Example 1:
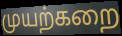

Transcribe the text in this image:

முயற்கறை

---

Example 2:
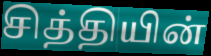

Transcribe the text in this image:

சித்தியின்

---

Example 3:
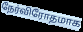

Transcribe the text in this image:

நேர்விரோதமாக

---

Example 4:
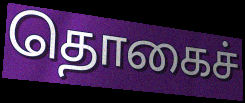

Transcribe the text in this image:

தொகைச்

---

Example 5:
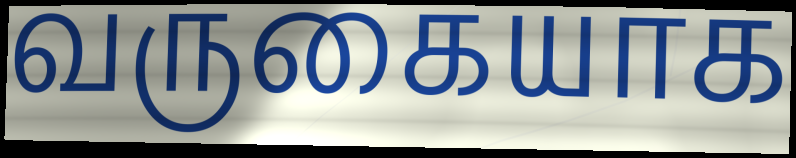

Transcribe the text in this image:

வருகையாக